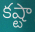
కష్టా